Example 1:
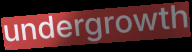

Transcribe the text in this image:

undergrowth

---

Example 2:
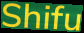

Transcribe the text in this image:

Shifu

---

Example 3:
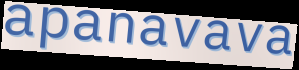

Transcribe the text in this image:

apanavava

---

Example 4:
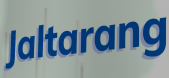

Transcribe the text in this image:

Jaltarang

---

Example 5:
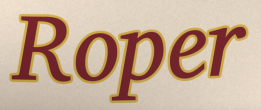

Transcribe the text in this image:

Roper